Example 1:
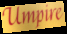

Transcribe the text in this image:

Umpire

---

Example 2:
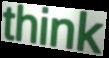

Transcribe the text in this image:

think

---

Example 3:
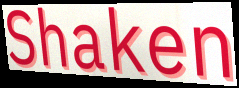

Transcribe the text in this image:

Shaken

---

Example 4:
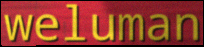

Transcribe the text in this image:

weluman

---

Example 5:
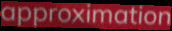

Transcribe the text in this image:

approximation